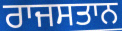
ਰਾਜਸਤਾਨ